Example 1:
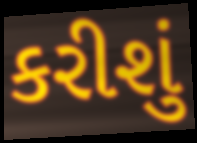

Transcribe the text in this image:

કરીશું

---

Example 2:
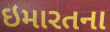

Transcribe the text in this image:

ઇમારતના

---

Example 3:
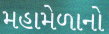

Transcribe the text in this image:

મહામેળાનો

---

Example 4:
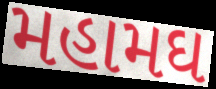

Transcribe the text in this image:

મહામઘ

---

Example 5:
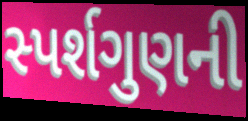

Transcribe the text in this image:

સ્પર્શગુણની